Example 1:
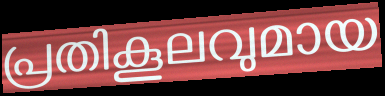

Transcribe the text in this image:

പ്രതികൂലവുമായ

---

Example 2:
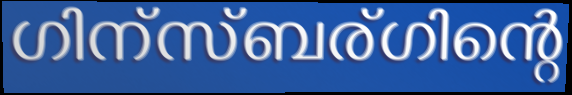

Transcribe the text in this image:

ഗിന്സ്ബര്ഗിന്റെ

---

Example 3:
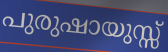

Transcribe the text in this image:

പുരുഷായുസ്സ്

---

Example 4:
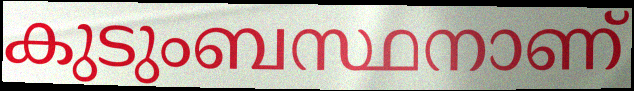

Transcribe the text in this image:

കുടുംബസ്ഥനാണ്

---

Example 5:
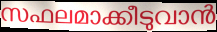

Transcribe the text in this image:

സഫലമാക്കീടുവാൻ